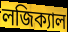
লজিক্যাল